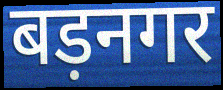
बड़नगर